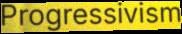
Progressivism